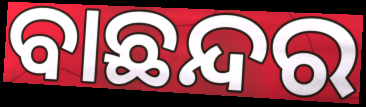
ବାଛନ୍ଦର